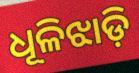
ଧୂଳିଝାଡ଼ି